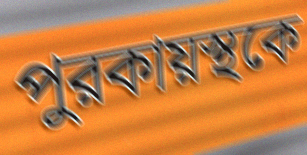
পুরকায়স্থকে